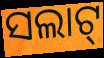
ସଲାଟ୍